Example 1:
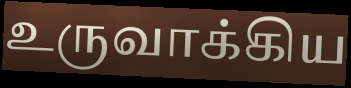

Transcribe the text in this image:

உருவாக்கிய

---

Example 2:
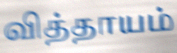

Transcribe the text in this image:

வித்தாயம்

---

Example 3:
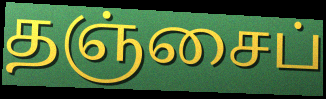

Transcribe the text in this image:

தஞ்சைப்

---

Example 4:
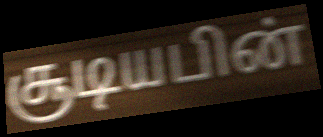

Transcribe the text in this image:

சூடியபின்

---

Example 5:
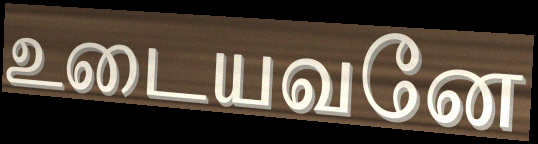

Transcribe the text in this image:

உடையவனே